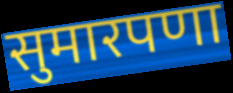
सुमारपणा